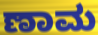
ಣಾಮ